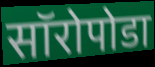
सॉरोपोडा